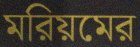
মরিয়মের